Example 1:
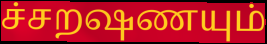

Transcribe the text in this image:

ச்சறஷணயும்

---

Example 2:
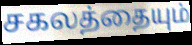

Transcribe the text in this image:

சகலத்தையும்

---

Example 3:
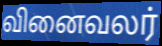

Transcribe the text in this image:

வினைவலர்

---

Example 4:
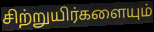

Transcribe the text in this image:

சிற்றுயிர்களையும்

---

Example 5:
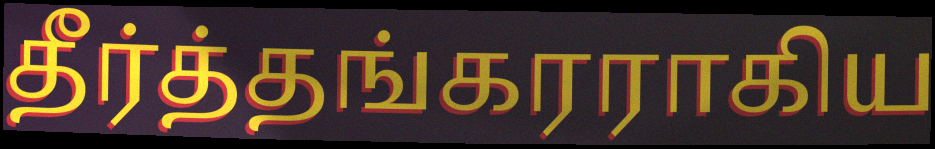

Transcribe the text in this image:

தீர்த்தங்கரராகிய